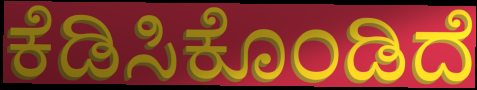
ಕೆಡಿಸಿಕೊಂಡಿದೆ